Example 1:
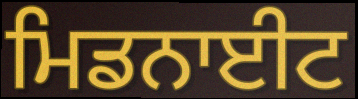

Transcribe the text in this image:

ਮਿਡਨਾਈਟ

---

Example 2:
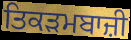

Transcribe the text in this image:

ਤਿਕੜਮਬਾਜ਼ੀ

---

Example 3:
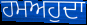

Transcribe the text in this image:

ਹਮਅਹੁਦਾ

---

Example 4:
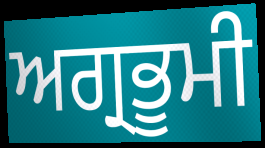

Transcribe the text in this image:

ਅਗ੍ਰਭੂਮੀ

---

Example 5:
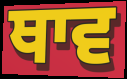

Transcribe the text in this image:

ਥਾਵ